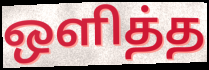
ஒளித்த